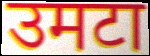
उमटा